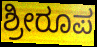
ಶ್ರೀರೂಪ